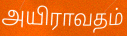
அயிராவதம்